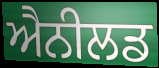
ਐਨੀਲਡ